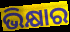
ଭିକ୍ଷାର